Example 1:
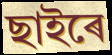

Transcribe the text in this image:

ছাইৰে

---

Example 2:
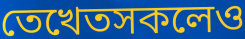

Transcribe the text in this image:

তেখেতসকলেও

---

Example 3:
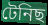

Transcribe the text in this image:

টেনিছ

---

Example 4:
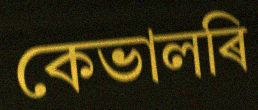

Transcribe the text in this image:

কেভালৰি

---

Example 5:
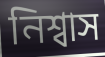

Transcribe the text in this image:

নিশ্বাস